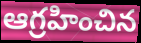
ఆగ్రహించిన